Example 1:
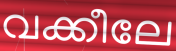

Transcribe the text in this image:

വക്കീലേ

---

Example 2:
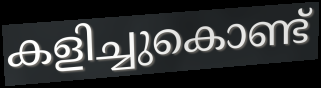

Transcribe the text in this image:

കളിച്ചുകൊണ്ട്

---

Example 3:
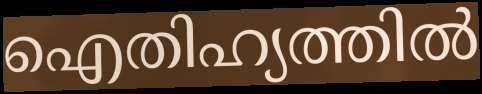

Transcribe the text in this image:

ഐതിഹ്യത്തിൽ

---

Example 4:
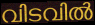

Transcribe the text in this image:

വിടവിൽ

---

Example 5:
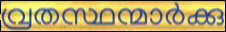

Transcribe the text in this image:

വ്രതസ്ഥന്മാർക്കു